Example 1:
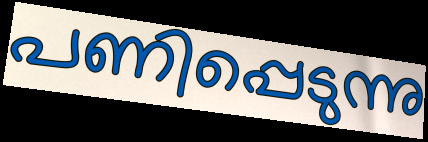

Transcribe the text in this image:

പണിപ്പെടുന്നു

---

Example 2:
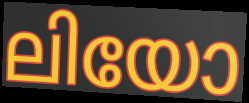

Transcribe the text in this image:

ലിയോ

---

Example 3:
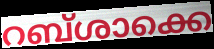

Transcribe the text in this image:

റബ്ശാക്കെ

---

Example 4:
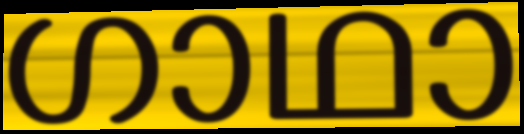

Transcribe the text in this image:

ഗാഥാ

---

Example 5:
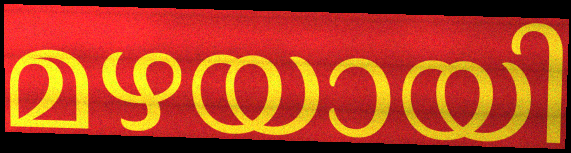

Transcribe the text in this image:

മഴയായി